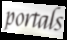
portals